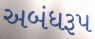
અબંધરૂપ